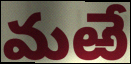
మఱే